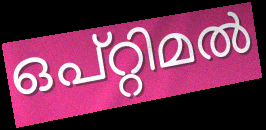
ഒപ്റ്റിമൽ